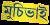
মুচিভাই